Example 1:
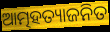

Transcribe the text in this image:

ଆତ୍ମହତ୍ୟାଜନିତ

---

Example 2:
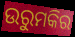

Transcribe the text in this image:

ଉରୁମକିର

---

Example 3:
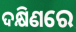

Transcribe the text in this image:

ଦକ୍ଷିଣରେ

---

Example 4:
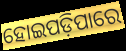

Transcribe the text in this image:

ହୋଇପଡ଼ିପାରେ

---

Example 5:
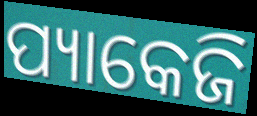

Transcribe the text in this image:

ପ୍ୟାକେଜି